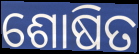
ଶୋଷିତ